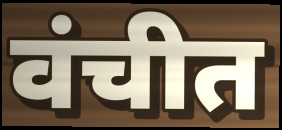
वंचीत